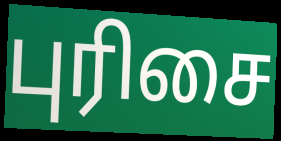
புரிசை